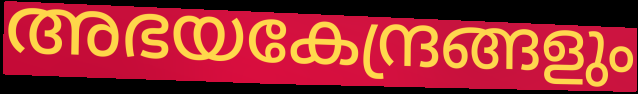
അഭയകേന്ദ്രങ്ങളും